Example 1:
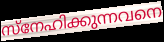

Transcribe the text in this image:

സ്നേഹിക്കുന്നവനെ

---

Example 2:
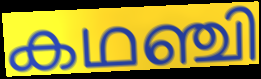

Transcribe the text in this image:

കഥഞ്ചി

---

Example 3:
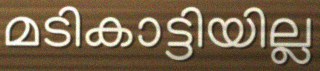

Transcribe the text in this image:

മടികാട്ടിയില്ല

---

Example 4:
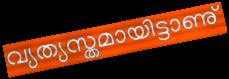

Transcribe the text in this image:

വ്യത്യസ്തമായിട്ടാണു്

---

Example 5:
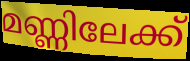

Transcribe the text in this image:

മണ്ണിലേക്ക്